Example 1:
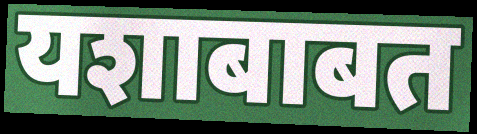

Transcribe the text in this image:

यशाबाबत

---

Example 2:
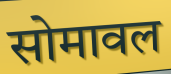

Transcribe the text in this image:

सोमावल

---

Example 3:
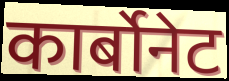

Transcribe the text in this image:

कार्बोनेट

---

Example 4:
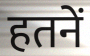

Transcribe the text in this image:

हतनें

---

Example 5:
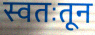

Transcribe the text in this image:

स्वतःतून